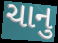
ચાનુ